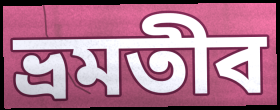
ভ্রমতীব